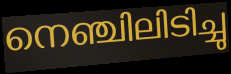
നെഞ്ചിലിടിച്ചു